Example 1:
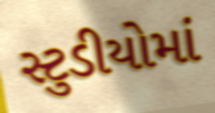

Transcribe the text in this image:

સ્ટુડીયોમાં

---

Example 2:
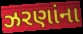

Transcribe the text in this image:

ઝરણાંના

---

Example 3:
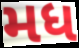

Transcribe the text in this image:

મધ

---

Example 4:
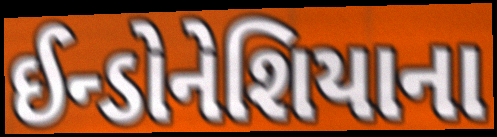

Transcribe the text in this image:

ઈન્ડોનેશિયાના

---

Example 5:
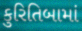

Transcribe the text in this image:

કુરિતિબામાં